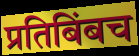
प्रतिबिंबच